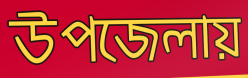
উপজেলায়